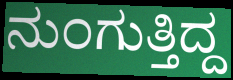
ನುಂಗುತ್ತಿದ್ದ